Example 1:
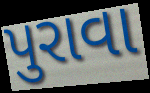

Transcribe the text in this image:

પુરાવા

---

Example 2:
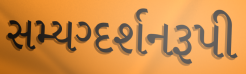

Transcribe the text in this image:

સમ્યગ્દર્શનરૂપી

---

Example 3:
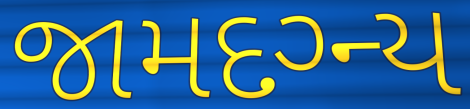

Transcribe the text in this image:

જામદગ્ન્ય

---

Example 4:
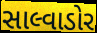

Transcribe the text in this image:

સાલ્વાડોર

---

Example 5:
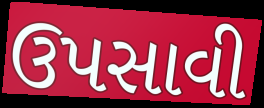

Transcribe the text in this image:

ઉપસાવી